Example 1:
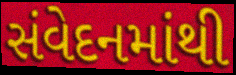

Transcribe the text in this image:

સંવેદનમાંથી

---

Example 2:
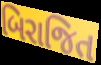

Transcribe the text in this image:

બિરાજિત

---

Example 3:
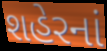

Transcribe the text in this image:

શહેરનાં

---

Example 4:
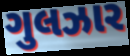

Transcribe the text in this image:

ગુલઝાર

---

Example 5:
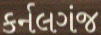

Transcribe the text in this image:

કર્નલગંજ